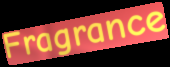
Fragrance